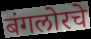
बंगलोरचे